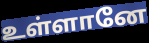
உள்ளானே